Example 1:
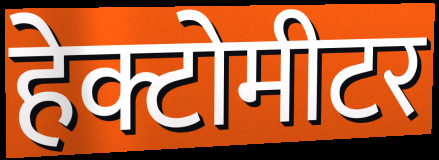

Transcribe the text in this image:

हेक्टोमीटर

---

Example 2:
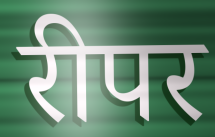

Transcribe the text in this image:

रीपर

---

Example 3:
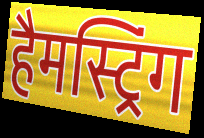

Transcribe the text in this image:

हैमस्ट्रिंग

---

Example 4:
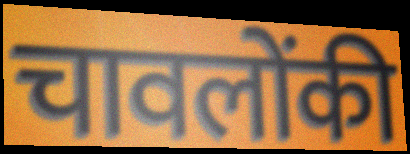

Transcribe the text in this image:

चावलोंकी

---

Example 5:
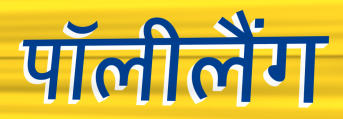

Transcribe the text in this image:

पॉलीलैंग